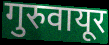
गुरुवायूर